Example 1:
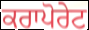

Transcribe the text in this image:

ਕਰਾਪੋਰੇਟ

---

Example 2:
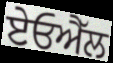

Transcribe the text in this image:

ਏਓਐੱਲ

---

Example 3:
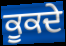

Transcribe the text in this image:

ਕੂਕਦੇ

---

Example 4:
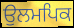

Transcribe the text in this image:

ਉਲਮਪਿਕ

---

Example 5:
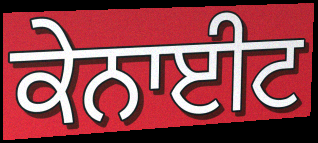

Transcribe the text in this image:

ਕੇਨਾਈਟ